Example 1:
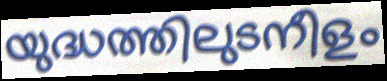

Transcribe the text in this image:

യുദ്ധത്തിലുടനീളം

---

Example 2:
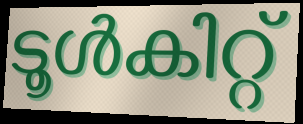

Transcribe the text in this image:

ടൂൾകിറ്റ്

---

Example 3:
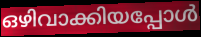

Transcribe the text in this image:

ഒഴിവാക്കിയപ്പോൾ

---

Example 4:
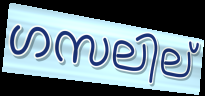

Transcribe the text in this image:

ഗസലില്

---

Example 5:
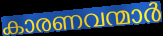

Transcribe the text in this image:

കാരണവന്മാർ